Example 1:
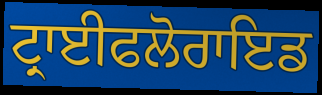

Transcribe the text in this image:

ਟ੍ਰਾਈਫਲੋਰਾਇਡ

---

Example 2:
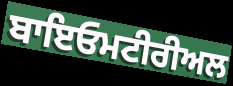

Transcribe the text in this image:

ਬਾਇਓਮਟੀਰੀਅਲ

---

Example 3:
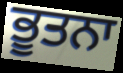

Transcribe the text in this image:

ਭੂਤਨਾ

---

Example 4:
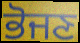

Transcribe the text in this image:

ਭੋਜਣ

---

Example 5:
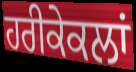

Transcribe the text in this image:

ਹਰੀਕੇਕਲਾਂ